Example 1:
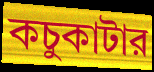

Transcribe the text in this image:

কচুকাটার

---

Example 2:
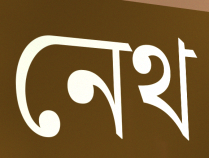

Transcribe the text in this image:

নেথ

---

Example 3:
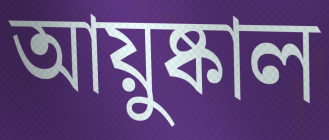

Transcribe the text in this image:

আয়ুষ্কাল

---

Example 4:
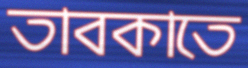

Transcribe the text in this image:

তাবকাতে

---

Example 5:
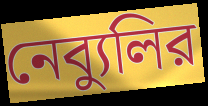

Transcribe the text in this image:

নেব্যুলির